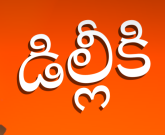
డిల్లీకి